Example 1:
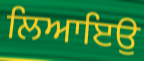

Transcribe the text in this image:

ਲਿਆਇਉ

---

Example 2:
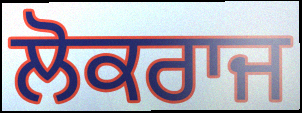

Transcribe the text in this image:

ਲੋਕਰਾਜ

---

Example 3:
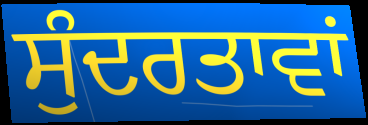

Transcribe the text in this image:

ਸੁੰਦਰਤਾਵਾਂ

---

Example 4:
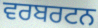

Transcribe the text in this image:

ਵਰਬਰਟਨ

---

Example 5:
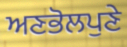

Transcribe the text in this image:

ਅਣਭੋਲਪੁਣੇ